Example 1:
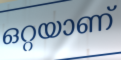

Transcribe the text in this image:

ഒറ്റയാണ്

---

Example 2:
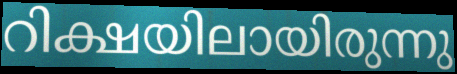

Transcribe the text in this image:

റിക്ഷയിലായിരുന്നു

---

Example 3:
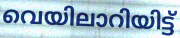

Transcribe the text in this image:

വെയിലാറിയിട്ട്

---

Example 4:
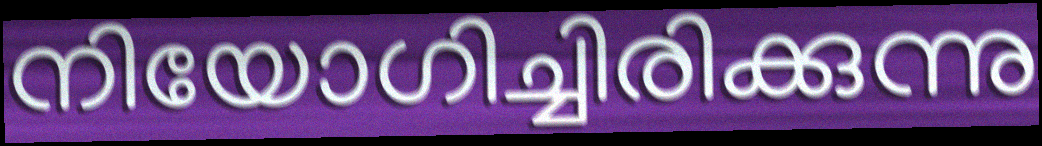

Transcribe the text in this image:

നിയോഗിച്ചിരിക്കുന്നു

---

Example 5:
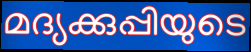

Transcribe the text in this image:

മദ്യക്കുപ്പിയുടെ